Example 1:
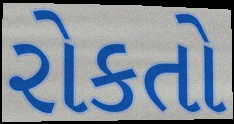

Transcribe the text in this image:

રોકતો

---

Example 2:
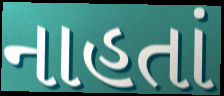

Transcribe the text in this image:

નાહતાં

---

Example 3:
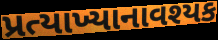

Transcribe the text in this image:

પ્રત્યાખ્યાનાવશ્યક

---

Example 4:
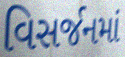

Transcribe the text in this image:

વિસર્જનમાં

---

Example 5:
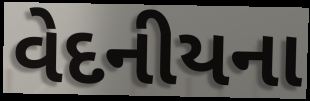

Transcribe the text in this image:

વેદનીયના